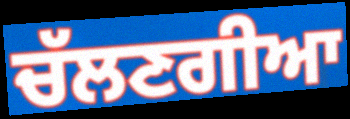
ਚੱਲਣਗੀਆ